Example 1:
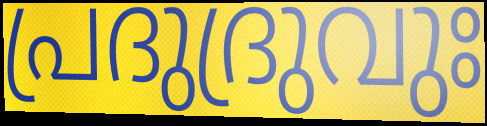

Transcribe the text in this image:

പ്രദുദ്രുവുഃ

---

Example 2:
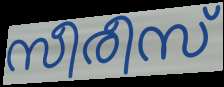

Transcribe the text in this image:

സീരീസ്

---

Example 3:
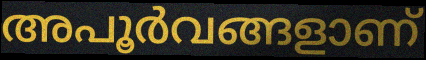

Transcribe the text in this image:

അപൂർവങ്ങളാണ്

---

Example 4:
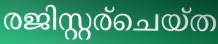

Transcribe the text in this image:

രജിസ്റ്റര്ചെയ്ത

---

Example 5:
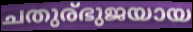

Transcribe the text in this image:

ചതുര്ഭുജയായ